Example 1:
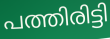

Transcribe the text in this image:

പത്തിരിട്ടി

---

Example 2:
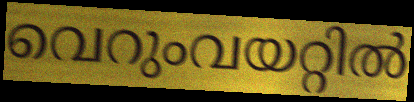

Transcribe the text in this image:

വെറുംവയറ്റിൽ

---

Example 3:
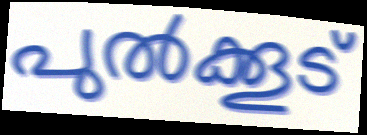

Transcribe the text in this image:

പുൽക്കൂട്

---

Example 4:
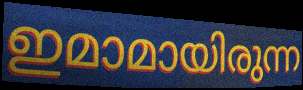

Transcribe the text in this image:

ഇമാമായിരുന്ന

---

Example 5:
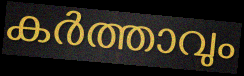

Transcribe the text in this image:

കർത്താവും